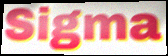
Sigma